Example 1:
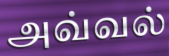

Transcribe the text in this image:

அவ்வல்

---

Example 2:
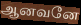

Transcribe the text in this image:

ஆனவனே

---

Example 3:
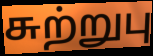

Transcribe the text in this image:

சுற்றுபு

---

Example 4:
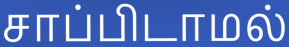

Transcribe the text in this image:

சாப்பிடாமல்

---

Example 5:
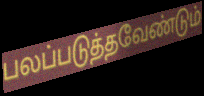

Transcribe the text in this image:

பலப்படுத்தவேண்டும்